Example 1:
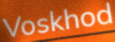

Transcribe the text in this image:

Voskhod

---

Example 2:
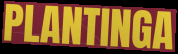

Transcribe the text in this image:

PLANTINGA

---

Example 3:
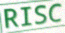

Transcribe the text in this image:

RISC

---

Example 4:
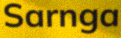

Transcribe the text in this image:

Sarnga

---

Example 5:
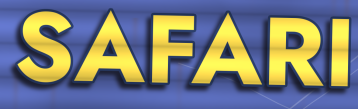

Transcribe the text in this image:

SAFARI